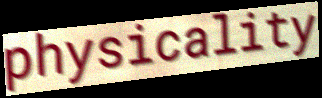
physicality